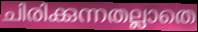
ചിരിക്കുന്നതല്ലാതെ